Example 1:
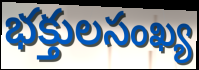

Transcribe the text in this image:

భక్తులసంఖ్య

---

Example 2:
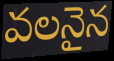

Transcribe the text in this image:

వలనైన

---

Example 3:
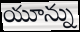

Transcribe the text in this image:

యూన్ను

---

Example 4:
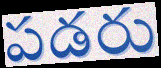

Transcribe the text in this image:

పడరు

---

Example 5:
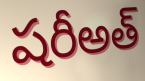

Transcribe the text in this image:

షరీఅత్